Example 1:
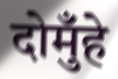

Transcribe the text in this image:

दोमुँहे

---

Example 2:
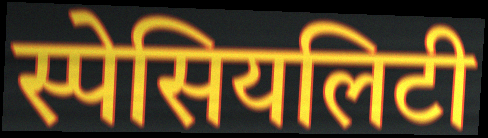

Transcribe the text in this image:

स्पेसियलिटी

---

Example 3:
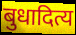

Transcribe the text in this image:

बुधादित्य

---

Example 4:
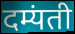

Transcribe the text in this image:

दम्यंती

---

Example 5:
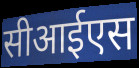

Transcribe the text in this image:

सीआईएस